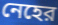
নেহের